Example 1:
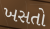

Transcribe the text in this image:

ખસતો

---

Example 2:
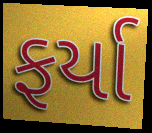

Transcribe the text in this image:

ફર્યા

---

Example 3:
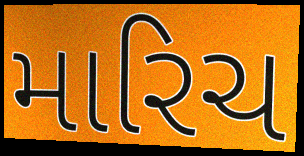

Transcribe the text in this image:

મારિચ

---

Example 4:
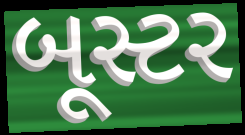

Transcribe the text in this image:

બૂસ્ટર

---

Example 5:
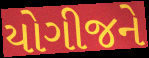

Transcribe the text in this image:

યોગીજને